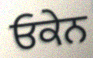
ਓਕੇਨ